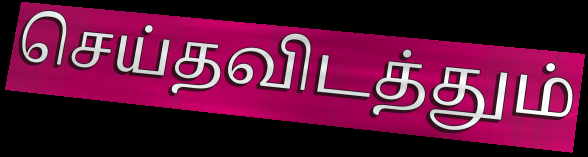
செய்தவிடத்தும்